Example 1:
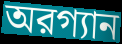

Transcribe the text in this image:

অরগ্যান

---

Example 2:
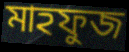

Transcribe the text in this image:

মাহফুজ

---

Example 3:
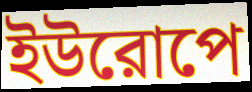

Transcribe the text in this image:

ইউরোপে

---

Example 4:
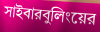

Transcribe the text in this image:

সাইবারবুলিংয়ের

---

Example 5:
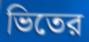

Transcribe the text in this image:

ভিতের